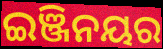
ଇଞ୍ଜିନୟର